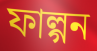
ফাল্গন